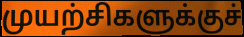
முயற்சிகளுக்குச்